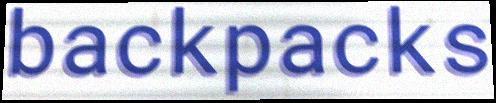
backpacks